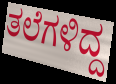
ತಲೆಗಳಿದ್ದ